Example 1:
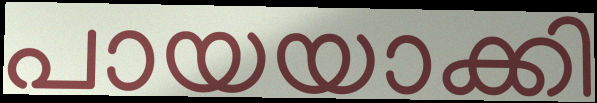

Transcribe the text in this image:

പായയാക്കി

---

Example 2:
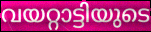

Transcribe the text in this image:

വയറ്റാട്ടിയുടെ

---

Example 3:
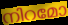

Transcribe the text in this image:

നിറമോ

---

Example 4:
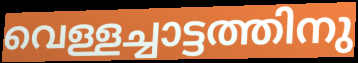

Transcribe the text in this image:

വെള്ളച്ചാട്ടത്തിനു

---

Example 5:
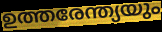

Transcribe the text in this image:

ഉത്തരേന്ത്യയും